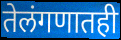
तेलंगणातही